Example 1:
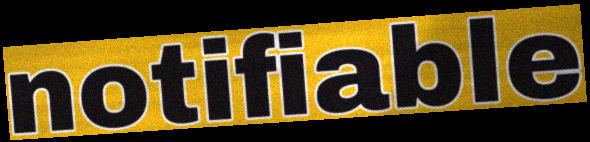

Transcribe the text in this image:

notifiable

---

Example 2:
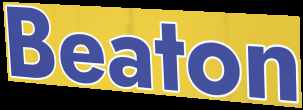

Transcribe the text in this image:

Beaton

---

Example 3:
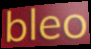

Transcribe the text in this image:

bleo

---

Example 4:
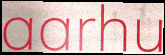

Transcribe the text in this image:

aarhu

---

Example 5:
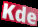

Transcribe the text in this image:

Kde